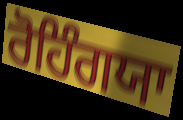
ਰੋਹਿੰਗਯਾ